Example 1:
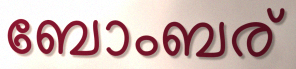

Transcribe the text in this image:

ബോംബര്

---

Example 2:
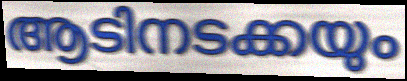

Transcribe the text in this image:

ആടിനടക്കയും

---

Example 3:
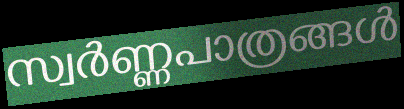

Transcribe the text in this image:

സ്വർണ്ണപാത്രങ്ങൾ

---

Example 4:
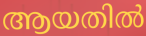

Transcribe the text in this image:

ആയതിൽ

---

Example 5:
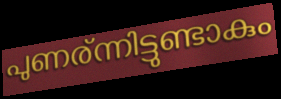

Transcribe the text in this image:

പുണര്ന്നിട്ടുണ്ടാകും